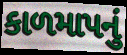
કાળમાપનું